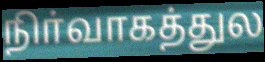
நிர்வாகத்துல